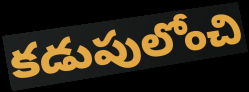
కడుపులోంచి